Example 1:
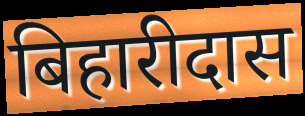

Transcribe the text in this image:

बिहारीदास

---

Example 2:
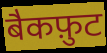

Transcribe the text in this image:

बैकफ़ुट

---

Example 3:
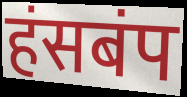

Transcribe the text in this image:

हंसबंप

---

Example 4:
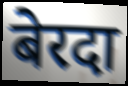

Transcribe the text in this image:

बेरदा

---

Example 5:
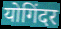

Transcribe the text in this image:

योगिंदर